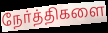
நேர்த்திகளை